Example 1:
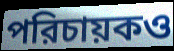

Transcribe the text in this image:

পরিচায়কও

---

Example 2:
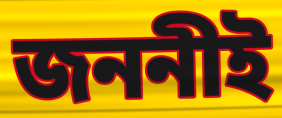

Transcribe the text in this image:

জননীই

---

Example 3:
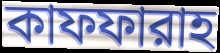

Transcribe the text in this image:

কাফফারাহ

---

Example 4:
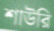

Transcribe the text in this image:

শাউরি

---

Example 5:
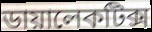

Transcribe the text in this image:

ডায়ালেকটিক্স